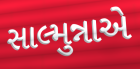
સાલ્મુન્નાએ